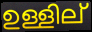
ഉള്ളില്